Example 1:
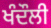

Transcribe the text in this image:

ਖੰਦੌਲੀ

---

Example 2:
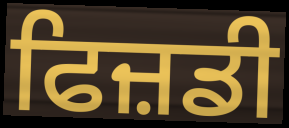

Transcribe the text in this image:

ਫਿਜ਼ਡੀ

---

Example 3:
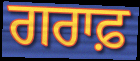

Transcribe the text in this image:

ਗਰਾਫ਼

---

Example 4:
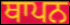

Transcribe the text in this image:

ਥਾਪਨ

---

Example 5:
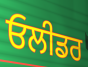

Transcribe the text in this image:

ਓਲੀਡਰ